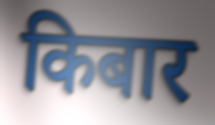
किबार